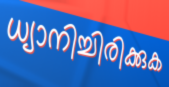
ധ്യാനിച്ചിരിക്കുക